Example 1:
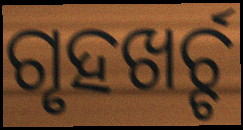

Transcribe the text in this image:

ଗୃହଖର୍ଚ୍ଚ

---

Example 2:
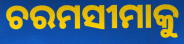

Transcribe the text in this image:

ଚରମସୀମାକୁ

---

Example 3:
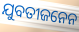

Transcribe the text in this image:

ଯୁବତୀଜନେନ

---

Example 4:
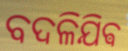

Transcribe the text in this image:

ବଦଳିଯିଵ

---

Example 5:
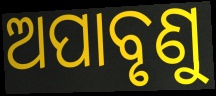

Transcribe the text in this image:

ଅପାବୃଣୁ